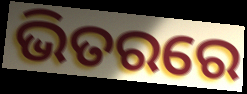
ଭିତରରେ